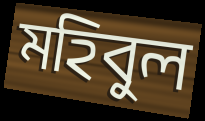
মহিবুল